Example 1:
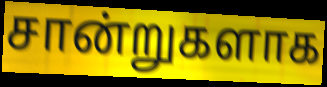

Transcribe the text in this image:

சான்றுகளாக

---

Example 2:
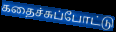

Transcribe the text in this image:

கதைச்சுப்போட்டு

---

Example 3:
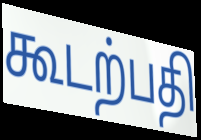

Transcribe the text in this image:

கூடற்பதி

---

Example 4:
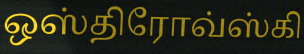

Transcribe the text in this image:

ஒஸ்திரோவ்ஸ்கி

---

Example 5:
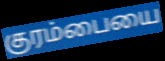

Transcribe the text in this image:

குரம்பையை